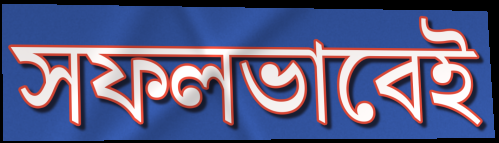
সফলভাবেই